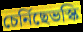
চেৰ্নিছেভস্কি